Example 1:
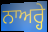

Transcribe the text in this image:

ਨਾਅਰ੍ਹੇ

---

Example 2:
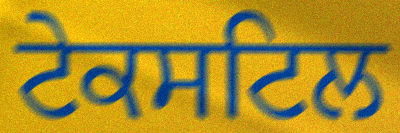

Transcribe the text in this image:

ਟੇਕਸਟਿਲ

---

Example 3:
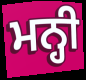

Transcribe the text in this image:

ਮਨ੍ਹੀ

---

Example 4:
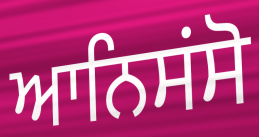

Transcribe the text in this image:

ਆਨਿਸਂਸੋ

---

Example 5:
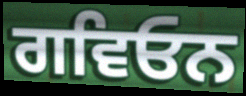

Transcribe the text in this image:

ਗਵਿਓਨ